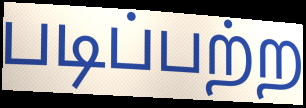
படிப்பற்ற